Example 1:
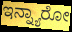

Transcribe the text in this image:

ಇನ್ನ್ಯಾರೋ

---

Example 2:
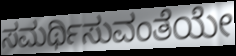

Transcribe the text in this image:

ಸಮರ್ಥಿಸುವಂತೆಯೇ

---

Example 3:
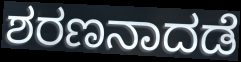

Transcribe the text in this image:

ಶರಣನಾದಡೆ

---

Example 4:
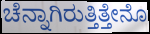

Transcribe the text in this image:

ಚೆನ್ನಾಗಿರುತ್ತಿತ್ತೇನೊ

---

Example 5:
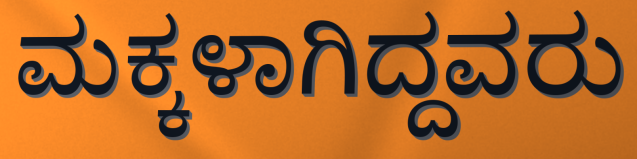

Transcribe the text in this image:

ಮಕ್ಕಳಾಗಿದ್ದವರು